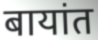
बायांत